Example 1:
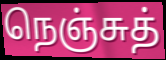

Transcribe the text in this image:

நெஞ்சுத்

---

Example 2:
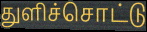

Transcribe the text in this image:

துளிச்சொட்டு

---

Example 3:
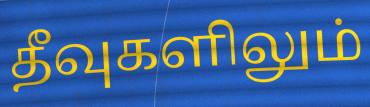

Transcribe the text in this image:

தீவுகளிலும்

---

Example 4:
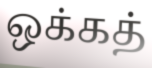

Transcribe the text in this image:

ஒக்கத்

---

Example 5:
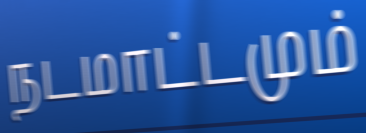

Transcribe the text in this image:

நடமாட்டமும்